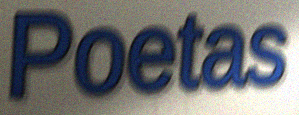
Poetas